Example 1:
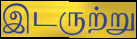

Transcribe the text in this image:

இடருற்று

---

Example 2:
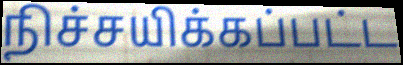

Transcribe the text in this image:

நிச்சயிக்கப்பட்ட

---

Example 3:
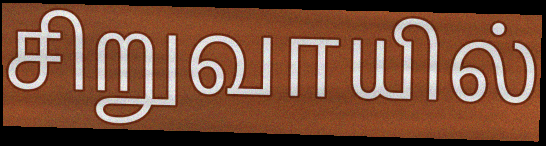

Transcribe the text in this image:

சிறுவாயில்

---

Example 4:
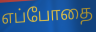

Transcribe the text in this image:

எப்போதை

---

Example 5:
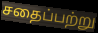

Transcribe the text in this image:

சதைப்பற்று